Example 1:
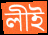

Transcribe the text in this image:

লীই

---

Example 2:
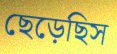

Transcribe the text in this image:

ছেড়েছিস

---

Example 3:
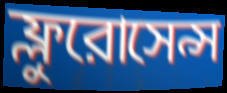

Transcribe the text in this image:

ফ্লুরোসেন্স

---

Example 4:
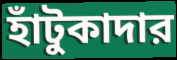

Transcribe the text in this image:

হাঁটুকাদার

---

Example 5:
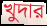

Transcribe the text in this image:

খুদার